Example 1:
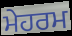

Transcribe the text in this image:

ਮੇਹਰਮ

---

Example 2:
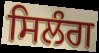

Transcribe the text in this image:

ਸਿਲੰਗ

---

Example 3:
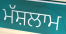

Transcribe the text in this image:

ਮੱਸ਼ਲਾਮ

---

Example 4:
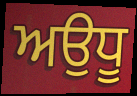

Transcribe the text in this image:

ਅਉਧੂ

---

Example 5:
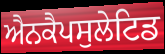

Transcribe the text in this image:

ਐਨਕੈਪਸੁਲੇਟਿਡ